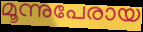
മൂന്നുപേരായ